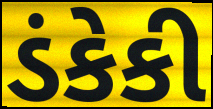
ડંકેકી